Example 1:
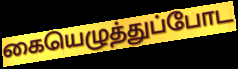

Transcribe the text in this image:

கையெழுத்துப்போட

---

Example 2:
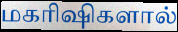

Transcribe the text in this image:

மகரிஷிகளால்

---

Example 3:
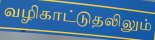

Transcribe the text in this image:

வழிகாட்டுதலிலும்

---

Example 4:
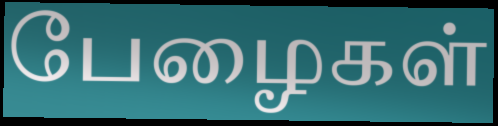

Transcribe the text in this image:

பேழைகள்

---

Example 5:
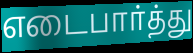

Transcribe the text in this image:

எடைபார்த்து